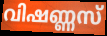
വിഷണ്ണസ്